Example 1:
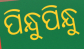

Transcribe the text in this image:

ପିନ୍ଧୁପିନ୍ଧୁ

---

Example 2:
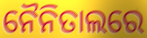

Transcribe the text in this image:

ନୈନିତାଲରେ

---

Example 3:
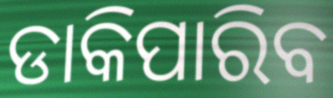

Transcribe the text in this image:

ଡାକିପାରିବ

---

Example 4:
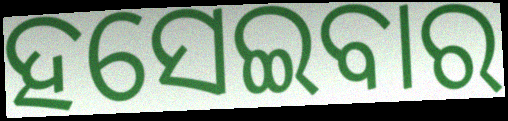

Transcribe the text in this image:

ହସେଇବାର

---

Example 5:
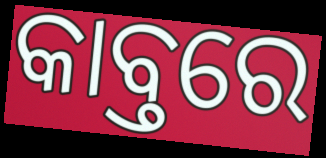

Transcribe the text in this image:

କାବ୍ତରେ